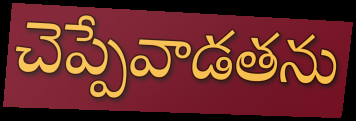
చెప్పేవాడతను